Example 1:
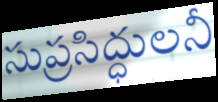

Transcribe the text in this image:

సుప్రసిద్ధులనీ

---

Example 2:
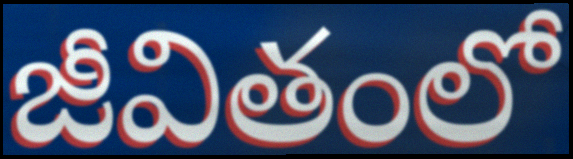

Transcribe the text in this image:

జీవితంలో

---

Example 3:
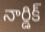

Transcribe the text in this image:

నార్డిక్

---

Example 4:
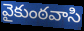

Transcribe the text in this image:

వైకుంఠవాసి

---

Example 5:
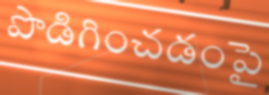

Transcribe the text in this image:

పొడిగించడంపై